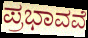
ಪ್ರಭಾವವೆ